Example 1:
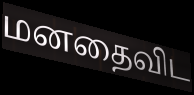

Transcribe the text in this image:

மனதைவிட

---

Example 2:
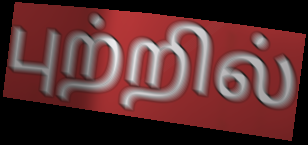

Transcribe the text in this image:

புற்றில்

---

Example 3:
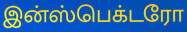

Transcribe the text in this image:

இன்ஸ்பெக்டரோ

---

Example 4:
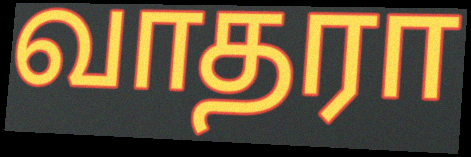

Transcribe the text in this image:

வாதரா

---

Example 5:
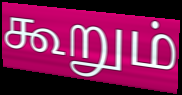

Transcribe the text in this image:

கூறும்